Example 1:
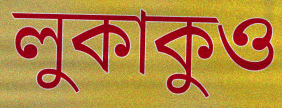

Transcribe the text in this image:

লুকাকুও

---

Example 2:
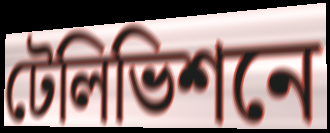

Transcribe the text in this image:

টেলিভিশনে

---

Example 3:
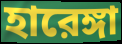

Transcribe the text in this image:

হারেঙ্গা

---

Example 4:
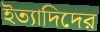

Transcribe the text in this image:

ইত্যাদিদের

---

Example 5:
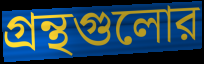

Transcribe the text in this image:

গ্রন্থগুলোর